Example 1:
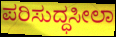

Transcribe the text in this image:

ಪರಿಸುದ್ಧಸೀಲಾ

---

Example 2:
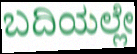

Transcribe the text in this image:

ಬದಿಯಲ್ಲೇ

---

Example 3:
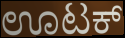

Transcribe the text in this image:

ಊಟಕ್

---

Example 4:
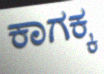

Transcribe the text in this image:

ಕಾಗಕ್ಕ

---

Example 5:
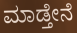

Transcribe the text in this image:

ಮಾಡ್ತೇನೆ